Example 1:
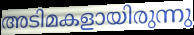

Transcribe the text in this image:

അടിമകളായിരുന്നു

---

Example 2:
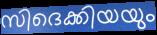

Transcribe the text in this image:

സിദെക്കിയയും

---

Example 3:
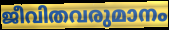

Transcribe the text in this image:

ജീവിതവരുമാനം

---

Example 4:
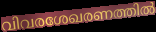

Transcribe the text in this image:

വിവരശേഖരണത്തിൽ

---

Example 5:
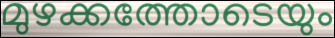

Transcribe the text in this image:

മുഴക്കത്തോടെയും